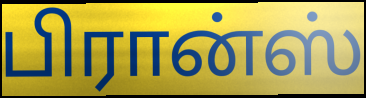
பிரான்ஸ்